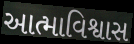
આત્માવિશ્વાસ